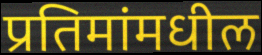
प्रतिमांमधील